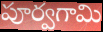
పూర్వగామి